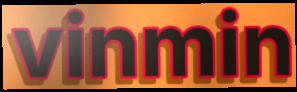
vinmin